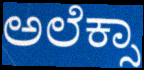
ಅಲೆಕ್ಸಾ